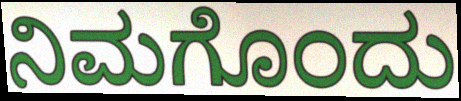
ನಿಮಗೊಂದು